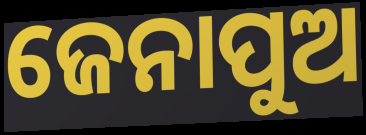
ଜେନାପୁଅ